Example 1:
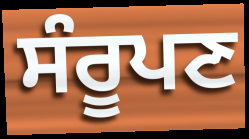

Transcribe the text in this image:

ਸੰਰੂਪਣ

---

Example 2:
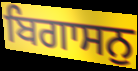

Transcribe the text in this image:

ਬਿਗਾਸਨੁ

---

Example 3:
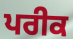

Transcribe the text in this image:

ਪਰੀਕ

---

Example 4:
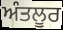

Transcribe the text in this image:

ਅੰਤਲੂਰ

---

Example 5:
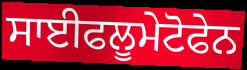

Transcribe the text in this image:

ਸਾਈਫਲੂਮੇਟੋਫੇਨ